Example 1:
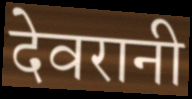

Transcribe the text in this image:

देवरानी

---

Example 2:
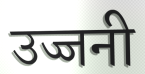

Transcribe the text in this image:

उज्जनी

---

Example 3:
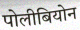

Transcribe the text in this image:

पोलीबियोन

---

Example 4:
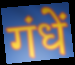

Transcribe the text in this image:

गंधें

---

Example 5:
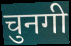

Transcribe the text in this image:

चुनगी